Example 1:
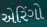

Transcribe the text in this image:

એરિંગો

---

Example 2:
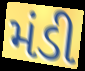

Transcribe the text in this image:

મંડી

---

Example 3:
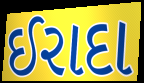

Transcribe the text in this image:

ઈરાદા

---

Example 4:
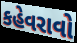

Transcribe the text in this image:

કહેવરાવો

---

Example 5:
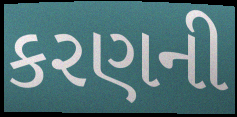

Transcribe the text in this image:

કરણની